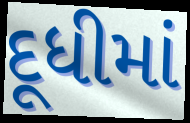
દૂધીમાં